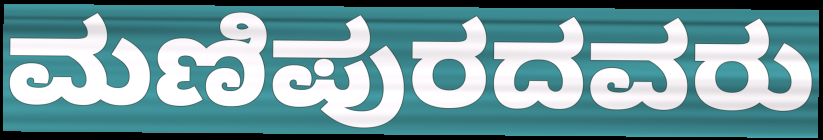
ಮಣಿಪುರದವರು